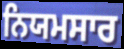
ਨਿਯਮਸਾਰ